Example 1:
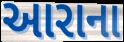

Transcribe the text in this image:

આરાના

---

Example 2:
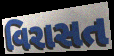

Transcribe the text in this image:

વિરાસત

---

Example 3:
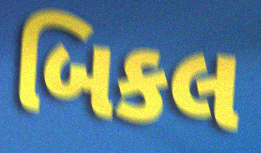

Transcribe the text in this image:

બિકલ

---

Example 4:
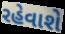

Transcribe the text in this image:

રહેવાશે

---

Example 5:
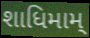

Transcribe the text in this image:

શાધિમામ્